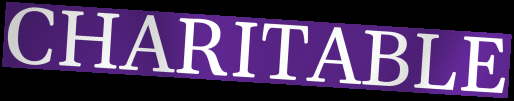
CHARITABLE